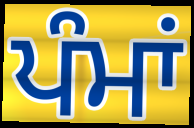
ਪੰਮਾਂ